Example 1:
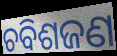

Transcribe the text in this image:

ଚବିଶଜଣ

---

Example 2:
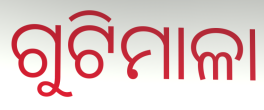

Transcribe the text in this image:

ଗୁଟିମାଳା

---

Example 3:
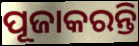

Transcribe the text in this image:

ପୂଜାକରନ୍ତି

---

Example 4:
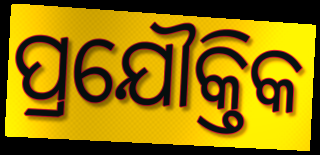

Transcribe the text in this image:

ପ୍ରଯୌକ୍ତିକ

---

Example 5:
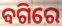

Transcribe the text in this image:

ବଗିରେ